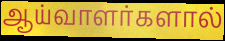
ஆய்வாளர்களால்